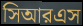
সিআরএস